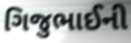
ગિજુભાઈની